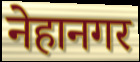
नेहानगर